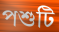
পশুটি